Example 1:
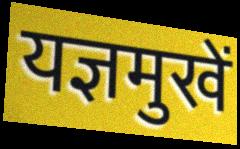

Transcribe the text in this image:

यज्ञमुखें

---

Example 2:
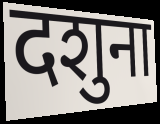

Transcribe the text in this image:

दशुना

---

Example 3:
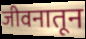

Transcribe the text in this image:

जीवनातून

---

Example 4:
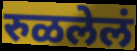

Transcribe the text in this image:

रुळलेलं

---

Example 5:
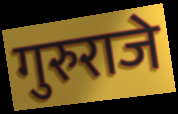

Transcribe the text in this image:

गुरुराजे